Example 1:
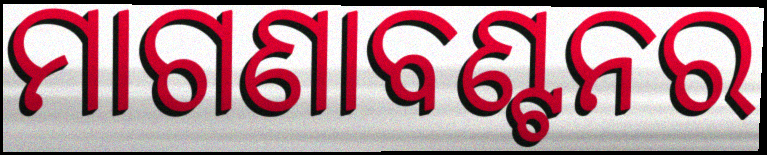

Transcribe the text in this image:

ମାଗଣାବଣ୍ଟନର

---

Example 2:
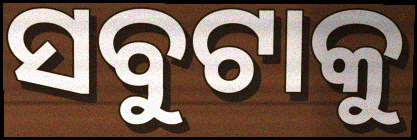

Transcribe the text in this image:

ସବୁଟାକୁ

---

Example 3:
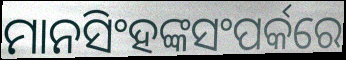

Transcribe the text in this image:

ମାନସିଂହଙ୍କସଂପର୍କରେ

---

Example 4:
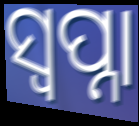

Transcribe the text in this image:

ସ୍ଵପ୍ନା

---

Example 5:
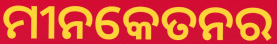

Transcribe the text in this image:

ମୀନକେତନର